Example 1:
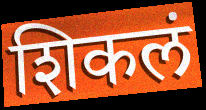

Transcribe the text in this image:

शिकलं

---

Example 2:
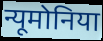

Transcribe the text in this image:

न्यूमोनिया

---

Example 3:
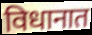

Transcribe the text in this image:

विधानात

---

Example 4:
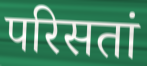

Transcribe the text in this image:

परिसतां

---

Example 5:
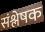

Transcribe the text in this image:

संश्लेषक